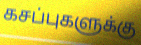
கசப்புகளுக்கு